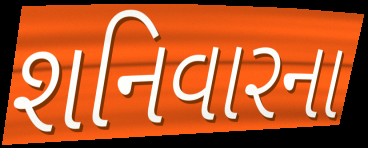
શનિવારના